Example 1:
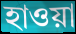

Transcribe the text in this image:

হাওয়া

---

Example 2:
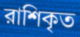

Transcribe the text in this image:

রাশিকৃত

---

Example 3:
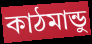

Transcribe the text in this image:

কাঠমান্ডু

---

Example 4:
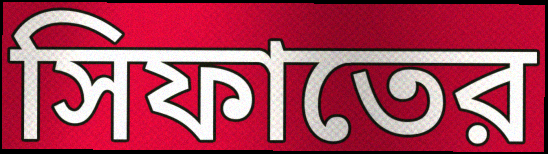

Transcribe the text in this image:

সিফাতের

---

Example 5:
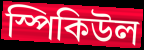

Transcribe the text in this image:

স্পিকিউল